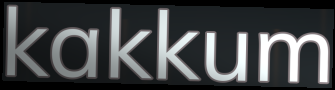
kakkum